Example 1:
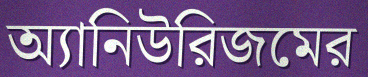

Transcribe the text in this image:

অ্যানিউরিজমের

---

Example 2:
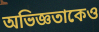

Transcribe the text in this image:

অভিজ্ঞতাকেও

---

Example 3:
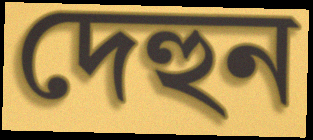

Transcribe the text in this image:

দেহুন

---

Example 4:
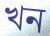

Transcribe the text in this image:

খন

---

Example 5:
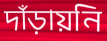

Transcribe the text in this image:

দাঁড়ায়নি